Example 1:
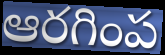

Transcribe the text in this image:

ఆరగింప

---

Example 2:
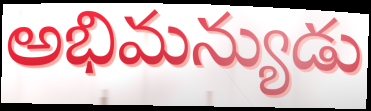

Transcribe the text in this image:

అభిమన్యుడు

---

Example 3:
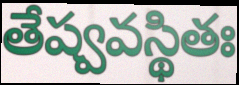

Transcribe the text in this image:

తేష్వవస్థితః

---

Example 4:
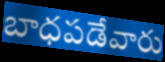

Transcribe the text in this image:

బాధపడేవారు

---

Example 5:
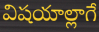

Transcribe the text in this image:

విషయాల్లాగే